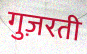
गुज़रती